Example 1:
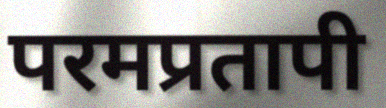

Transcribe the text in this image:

परमप्रतापी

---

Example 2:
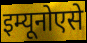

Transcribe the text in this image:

इम्यूनोएसे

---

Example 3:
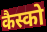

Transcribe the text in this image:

कैस्को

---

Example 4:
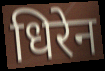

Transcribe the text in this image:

धिरेन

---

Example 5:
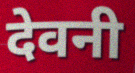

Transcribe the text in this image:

देवनी